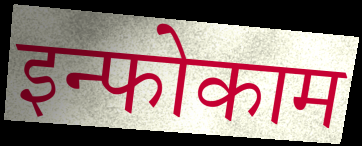
इन्फोकाम